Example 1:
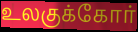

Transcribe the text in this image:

உலகுக்கோர்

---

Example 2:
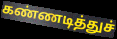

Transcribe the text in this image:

கண்ணடித்துச்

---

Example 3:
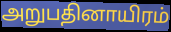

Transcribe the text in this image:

அறுபதினாயிரம்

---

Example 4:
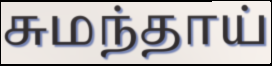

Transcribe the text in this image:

சுமந்தாய்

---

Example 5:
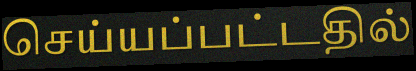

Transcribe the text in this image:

செய்யப்பட்டதில்